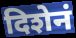
दिशेनं